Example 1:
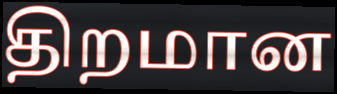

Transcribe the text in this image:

திறமான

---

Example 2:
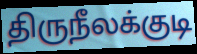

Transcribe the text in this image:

திருநீலக்குடி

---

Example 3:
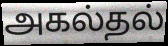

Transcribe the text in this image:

அகல்தல்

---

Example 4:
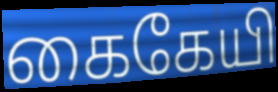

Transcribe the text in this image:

கைகேயி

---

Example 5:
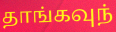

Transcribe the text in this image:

தாங்கவுந்